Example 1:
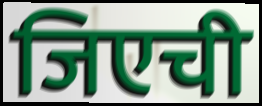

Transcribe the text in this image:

जिएची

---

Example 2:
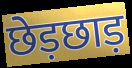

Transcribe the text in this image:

छेड़छाड़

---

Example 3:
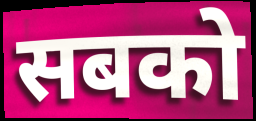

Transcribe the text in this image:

सबको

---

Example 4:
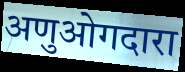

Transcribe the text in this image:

अणुओगदारा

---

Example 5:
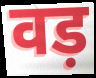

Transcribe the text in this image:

वड़